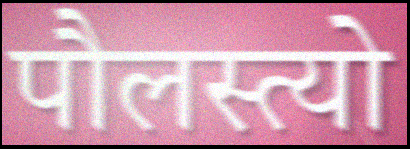
पौलस्त्यो